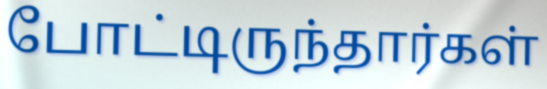
போட்டிருந்தார்கள்